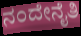
ನಂದೇನೈತಿ